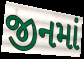
જીનમાં